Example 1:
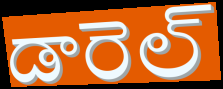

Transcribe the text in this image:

డారెల్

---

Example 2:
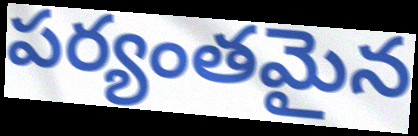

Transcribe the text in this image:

పర్యంతమైన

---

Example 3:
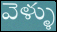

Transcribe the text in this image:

వెళ్ళు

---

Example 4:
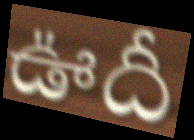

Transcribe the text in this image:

ఊదీ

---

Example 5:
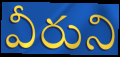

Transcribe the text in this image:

వీరుని